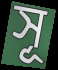
সূ